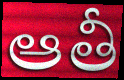
ఆతీ